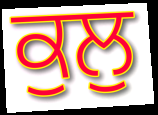
ਕੁਲੁ